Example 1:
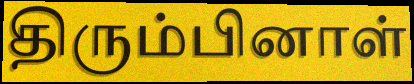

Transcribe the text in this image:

திரும்பினாள்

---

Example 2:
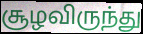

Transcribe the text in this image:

சூழவிருந்து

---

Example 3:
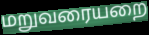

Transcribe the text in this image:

மறுவரையறை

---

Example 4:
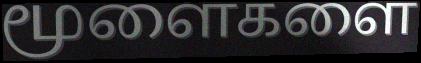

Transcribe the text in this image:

மூளைகளை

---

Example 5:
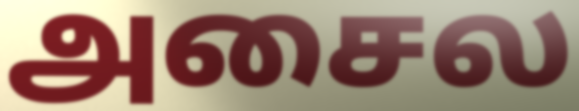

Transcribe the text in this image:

அசைல